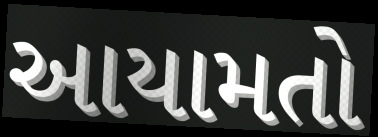
આયામતો